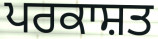
ਪਰਕਾਸ਼ਤ